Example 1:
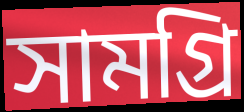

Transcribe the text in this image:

সামগ্রি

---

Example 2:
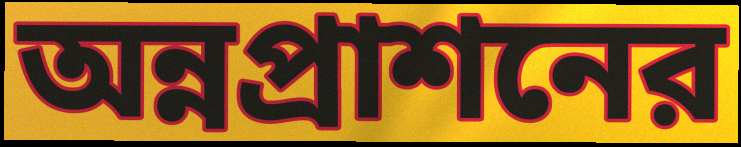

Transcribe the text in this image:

অন্নপ্রাশনের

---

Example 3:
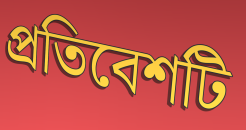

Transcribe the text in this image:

প্রতিবেশটি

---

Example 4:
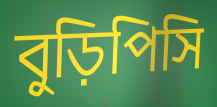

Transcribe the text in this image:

বুড়িপিসি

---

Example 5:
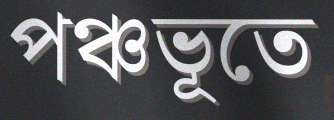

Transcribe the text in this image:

পঞ্চভূতে